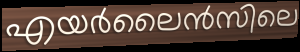
എയർലൈൻസിലെ